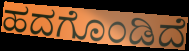
ಹದಗೊಂಡಿದೆ